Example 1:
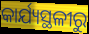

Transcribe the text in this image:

କାର୍ଯ୍ୟସ୍ଥଳୀରୁ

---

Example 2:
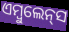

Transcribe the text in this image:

ଏମ୍ବୁଲେନ୍‌ସ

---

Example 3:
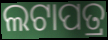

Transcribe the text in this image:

ଲଟାପତ୍ର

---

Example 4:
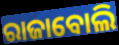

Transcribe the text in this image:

ରାଜାବୋଲି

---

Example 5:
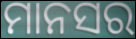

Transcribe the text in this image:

ମାନସର